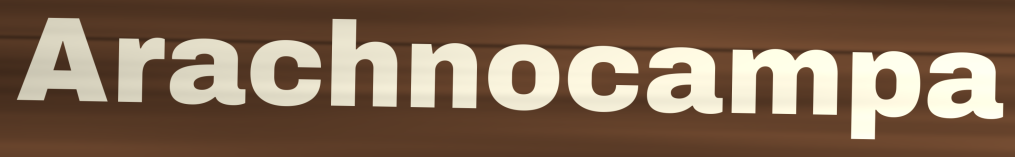
Arachnocampa